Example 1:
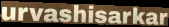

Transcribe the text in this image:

urvashisarkar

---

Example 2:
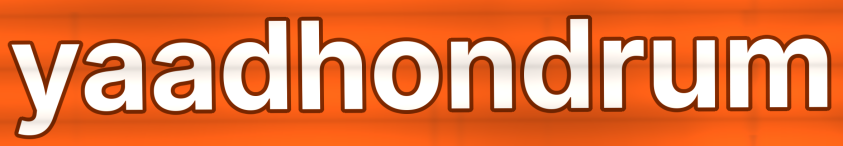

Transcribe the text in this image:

yaadhondrum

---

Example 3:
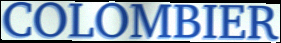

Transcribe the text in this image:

COLOMBIER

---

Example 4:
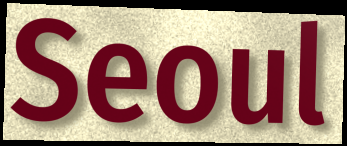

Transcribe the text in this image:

Seoul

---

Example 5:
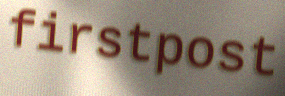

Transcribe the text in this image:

firstpost